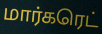
மார்கரெட்